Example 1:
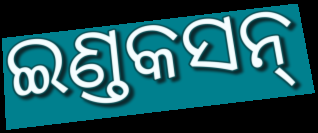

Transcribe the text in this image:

ଇଣ୍ଡକସନ୍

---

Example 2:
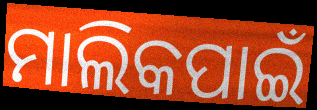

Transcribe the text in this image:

ମାଲିକପାଇଁ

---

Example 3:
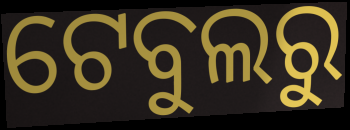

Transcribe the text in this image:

ଟେବୁଲରୁ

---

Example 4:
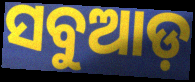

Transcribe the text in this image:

ସବୁଆଡ଼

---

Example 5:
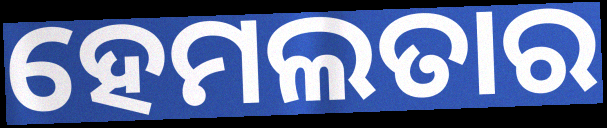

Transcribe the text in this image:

ହେମଲତାର